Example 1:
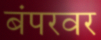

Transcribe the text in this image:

बंपरवर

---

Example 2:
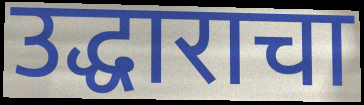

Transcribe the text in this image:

उद्धाराचा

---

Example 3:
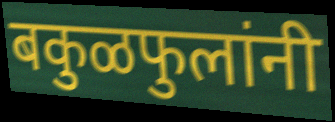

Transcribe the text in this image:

बकुळफुलांनी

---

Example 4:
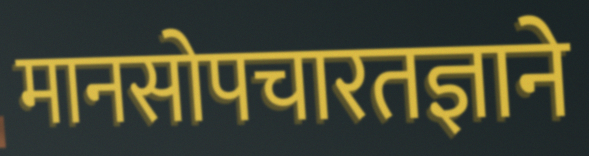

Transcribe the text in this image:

मानसोपचारतज्ञाने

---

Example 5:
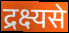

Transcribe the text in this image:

द्रक्ष्यसे